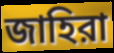
জাহিরা